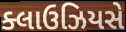
ક્લાઉઝિયસે